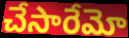
చేసారేమో